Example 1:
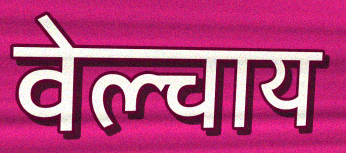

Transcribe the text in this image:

वेल्चाय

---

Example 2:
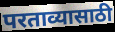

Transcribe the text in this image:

परताव्यासाठी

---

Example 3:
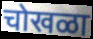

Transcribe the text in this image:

चोखळा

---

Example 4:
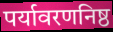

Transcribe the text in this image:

पर्यावरणनिष्ठ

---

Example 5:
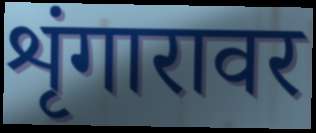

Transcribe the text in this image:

शृंगारावर